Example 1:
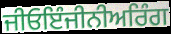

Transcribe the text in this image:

ਜੀਓਇੰਜੀਨੀਅਰਿੰਗ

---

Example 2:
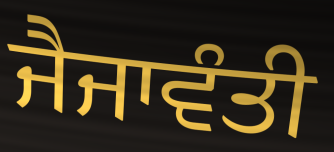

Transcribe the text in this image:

ਜੈਜਾਵੰਤੀ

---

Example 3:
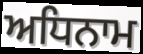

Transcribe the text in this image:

ਅਧਿਨਾਮ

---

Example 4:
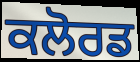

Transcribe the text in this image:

ਕਲੋਰਡ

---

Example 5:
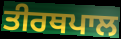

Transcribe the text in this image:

ਤੀਰਥਪਾਲ